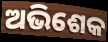
ଅଭିଶେକ